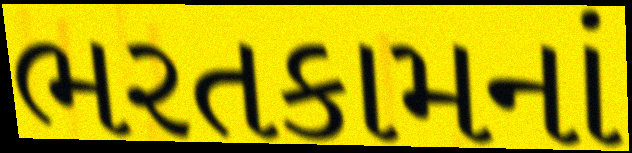
ભરતકામનાં